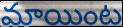
మాయింట